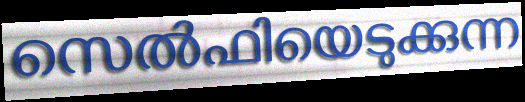
സെൽഫിയെടുക്കുന്ന